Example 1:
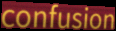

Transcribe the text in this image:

confusion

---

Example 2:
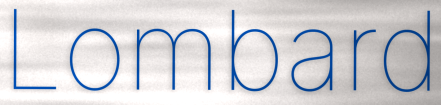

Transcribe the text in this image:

Lombard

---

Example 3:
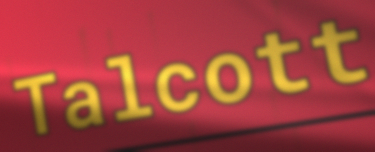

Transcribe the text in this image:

Talcott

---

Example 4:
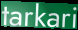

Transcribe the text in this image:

tarkari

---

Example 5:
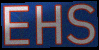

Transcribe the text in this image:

EHS